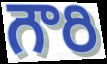
గౌరి